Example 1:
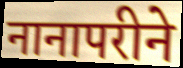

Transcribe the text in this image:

नानापरीने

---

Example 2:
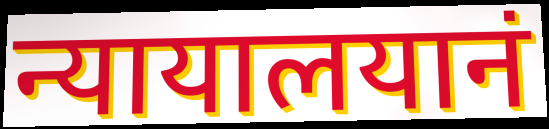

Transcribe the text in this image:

न्यायालयानं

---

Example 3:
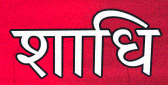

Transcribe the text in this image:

शाधि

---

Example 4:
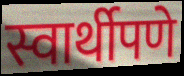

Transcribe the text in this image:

स्वार्थीपणे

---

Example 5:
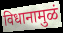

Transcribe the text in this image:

विधानामुळं